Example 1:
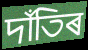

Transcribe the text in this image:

দাঁতিৰ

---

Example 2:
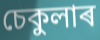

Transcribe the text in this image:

চেকুলাৰ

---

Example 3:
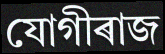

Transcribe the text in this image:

যোগীৰাজ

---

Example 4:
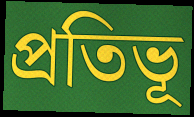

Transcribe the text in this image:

প্ৰতিভূ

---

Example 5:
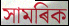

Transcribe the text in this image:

সামৰিক